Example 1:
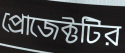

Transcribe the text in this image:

প্রোজেক্টটির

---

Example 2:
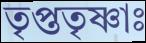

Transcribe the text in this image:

তৃপ্ততৃষ্ণাঃ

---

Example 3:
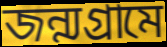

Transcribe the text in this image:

জন্মগ্রামে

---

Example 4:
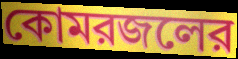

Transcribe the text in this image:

কোমরজলের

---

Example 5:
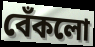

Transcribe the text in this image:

বেঁকলো